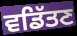
ਵਡਿੱਤਣ